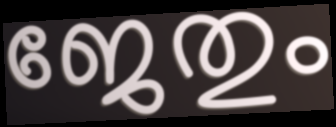
ജേതും